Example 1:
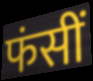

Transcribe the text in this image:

फंसीं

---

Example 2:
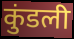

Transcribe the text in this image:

कुंडली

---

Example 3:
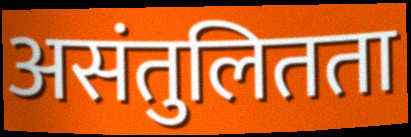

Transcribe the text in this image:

असंतुलितता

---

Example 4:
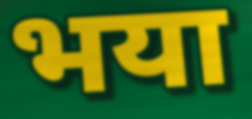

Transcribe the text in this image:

भया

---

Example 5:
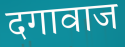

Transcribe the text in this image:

दगावाज